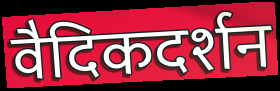
वैदिकदर्शन